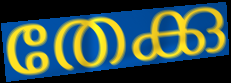
തേക്കു